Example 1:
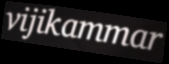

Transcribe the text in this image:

vijikammar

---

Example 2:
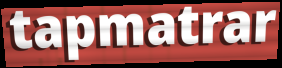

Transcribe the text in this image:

tapmatrar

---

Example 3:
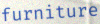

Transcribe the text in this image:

furniture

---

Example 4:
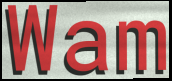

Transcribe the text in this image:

Wam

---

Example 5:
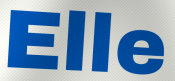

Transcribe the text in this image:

Elle